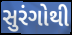
સુરંગોથી